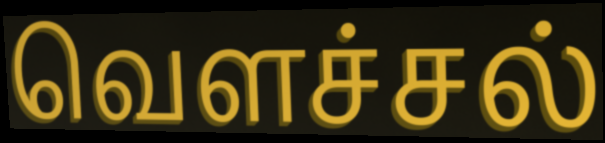
வெளச்சல்